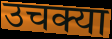
उचक्या